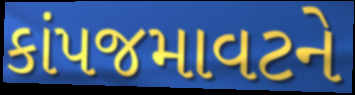
કાંપજમાવટને